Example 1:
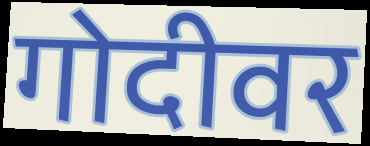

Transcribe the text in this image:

गोदीवर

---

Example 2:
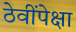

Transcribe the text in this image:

ठेवींपेक्षा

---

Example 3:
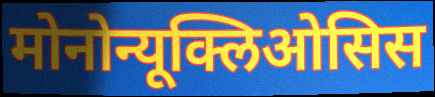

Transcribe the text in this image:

मोनोन्यूक्लिओसिस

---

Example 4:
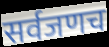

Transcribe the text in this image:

सर्वजणच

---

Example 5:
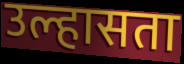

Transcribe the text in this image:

उल्हासता